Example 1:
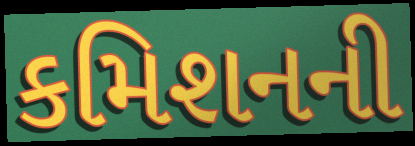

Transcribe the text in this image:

કમિશનની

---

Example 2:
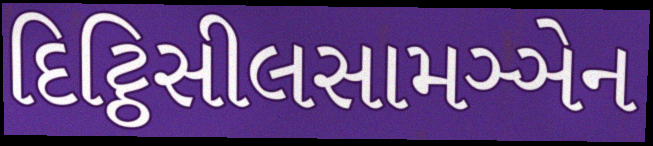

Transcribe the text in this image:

દિટ્ઠિસીલસામઞ્ઞેન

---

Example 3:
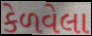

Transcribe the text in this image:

કેળવેલા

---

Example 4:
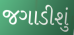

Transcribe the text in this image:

જગાડીશું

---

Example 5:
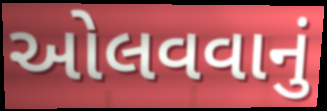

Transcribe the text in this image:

ઓલવવાનું